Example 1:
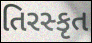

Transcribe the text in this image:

તિરસ્કૃત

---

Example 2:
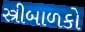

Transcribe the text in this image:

સ્ત્રીબાળકો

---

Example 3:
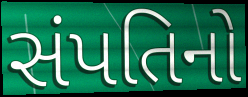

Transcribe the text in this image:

સંપતિનો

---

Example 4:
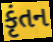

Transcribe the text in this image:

કૃંતન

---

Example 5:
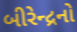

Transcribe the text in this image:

બીરેન્દ્રનો